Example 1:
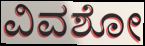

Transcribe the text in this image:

ವಿವಶೋ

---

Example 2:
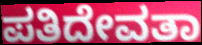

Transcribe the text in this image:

ಪತಿದೇವತಾ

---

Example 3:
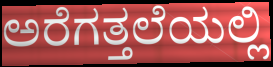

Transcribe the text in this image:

ಅರೆಗತ್ತಲೆಯಲ್ಲಿ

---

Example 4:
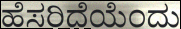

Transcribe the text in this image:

ಹೆಸರಿದೆಯೆಂದು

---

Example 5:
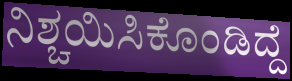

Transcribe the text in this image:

ನಿಶ್ಚಯಿಸಿಕೊಂಡಿದ್ದೆ